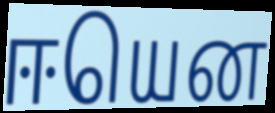
ஈயென